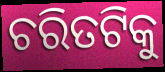
ଚରିତଟିକୁ